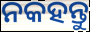
ନକହନ୍ତୁ